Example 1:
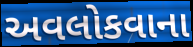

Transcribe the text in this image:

અવલોકવાના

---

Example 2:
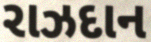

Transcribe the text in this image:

રાઝદાન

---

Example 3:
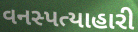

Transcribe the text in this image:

વનસ્પત્યાહારી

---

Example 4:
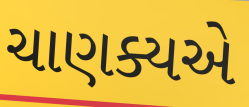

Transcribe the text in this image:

ચાણક્યએ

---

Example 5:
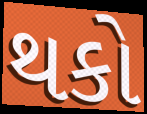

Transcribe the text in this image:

થકો